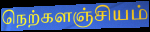
நெற்களஞ்சியம்